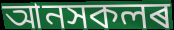
আনসকলৰ